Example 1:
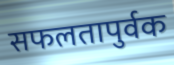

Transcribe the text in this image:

सफलतापुर्वक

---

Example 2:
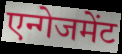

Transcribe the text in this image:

एन्गेजमेंट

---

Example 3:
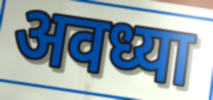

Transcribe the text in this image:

अवध्या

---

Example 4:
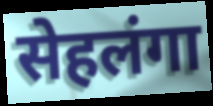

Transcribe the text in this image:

सेहलंगा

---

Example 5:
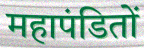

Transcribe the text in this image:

महापंडितों